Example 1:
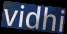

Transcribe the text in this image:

vidhi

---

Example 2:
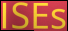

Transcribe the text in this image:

ISEs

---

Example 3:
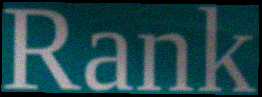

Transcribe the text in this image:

Rank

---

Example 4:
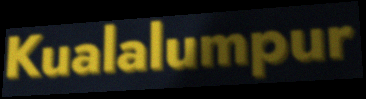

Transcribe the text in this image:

Kualalumpur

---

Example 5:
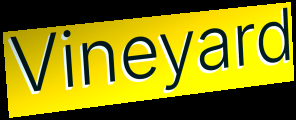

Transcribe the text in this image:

Vineyard